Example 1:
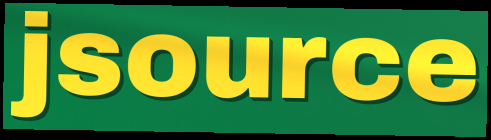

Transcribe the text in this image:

jsource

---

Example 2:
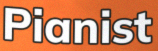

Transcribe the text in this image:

Pianist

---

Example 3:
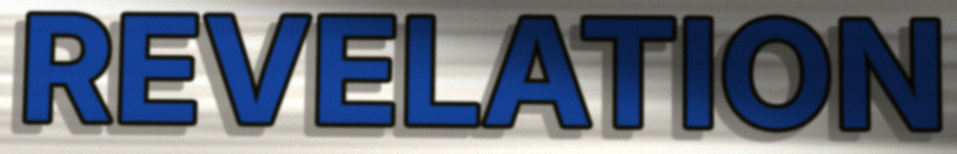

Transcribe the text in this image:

REVELATION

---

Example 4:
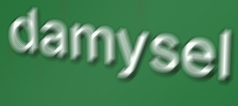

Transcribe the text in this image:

damysel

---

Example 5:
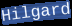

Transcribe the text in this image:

Hilgard